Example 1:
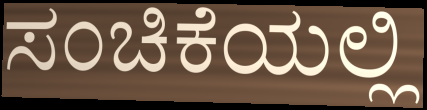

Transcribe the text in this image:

ಸಂಚಿಕೆಯಲ್ಲಿ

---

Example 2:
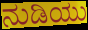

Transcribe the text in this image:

ನುಡಿಯು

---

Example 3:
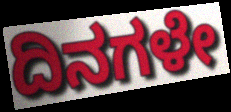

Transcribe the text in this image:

ದಿನಗಳೇ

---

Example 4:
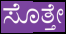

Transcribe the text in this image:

ಸೊತ್ತೇ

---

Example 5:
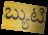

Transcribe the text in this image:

ಬ್ಯುಟಿ